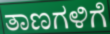
ತಾಣಗಳಿಗೆ